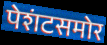
पेशंटसमोर